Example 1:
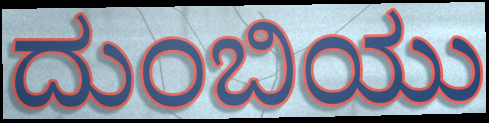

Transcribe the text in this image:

ದುಂಬಿಯು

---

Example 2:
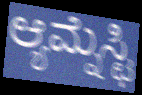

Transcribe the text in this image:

ಆ್ಯಮ್ನೆಸ್ಟಿ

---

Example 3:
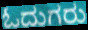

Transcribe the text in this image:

ಓದುಗರು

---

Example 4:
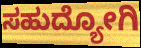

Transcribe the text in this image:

ಸಹುದ್ಯೋಗಿ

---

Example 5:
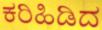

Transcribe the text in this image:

ಕರಿಹಿಡಿದ